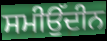
ਸਮੀਉੱਦੀਨ